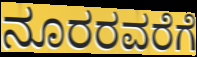
ನೂರರವರೆಗೆ